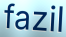
fazil